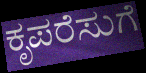
ಕೃಪರೆಸುಗೆ